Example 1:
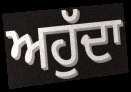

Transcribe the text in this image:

ਅਹੁੱਦਾ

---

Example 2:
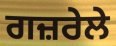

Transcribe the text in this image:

ਗਜ਼ਰੇਲੇ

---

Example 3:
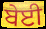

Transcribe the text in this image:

ਬੇਈ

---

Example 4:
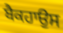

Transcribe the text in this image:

ਬੈਕਹਾਉਸ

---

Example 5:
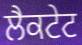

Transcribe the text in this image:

ਲੈਕਟੇਟ